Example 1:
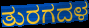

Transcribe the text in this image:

ತುರಗದಳ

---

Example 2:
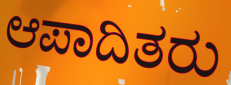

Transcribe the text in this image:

ಆಪಾದಿತರು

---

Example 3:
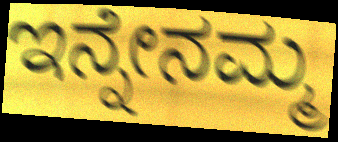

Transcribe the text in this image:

ಇನ್ನೇನಮ್ಮ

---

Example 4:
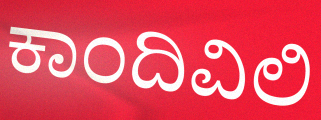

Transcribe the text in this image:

ಕಾಂದಿವಿಲಿ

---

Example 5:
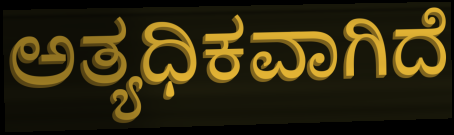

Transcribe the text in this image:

ಅತ್ಯಧಿಕವಾಗಿದೆ